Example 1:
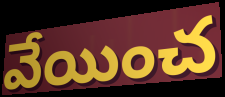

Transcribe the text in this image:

వేయించ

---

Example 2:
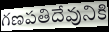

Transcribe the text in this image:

గణపతిదేవునికి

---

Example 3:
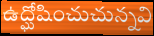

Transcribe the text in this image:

ఉద్ఘోషించుచున్నవి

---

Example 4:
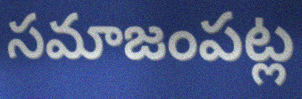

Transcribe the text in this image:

సమాజంపట్ల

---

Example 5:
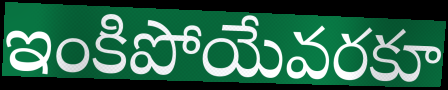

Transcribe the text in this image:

ఇంకిపోయేవరకూ